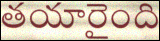
తయారైంది